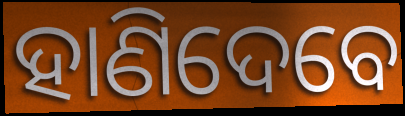
ହାଣିଦେବେ